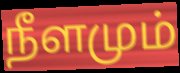
நீளமும்